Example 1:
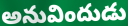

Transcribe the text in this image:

అనువిందుడు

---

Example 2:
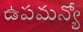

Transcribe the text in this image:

ఉపమన్యో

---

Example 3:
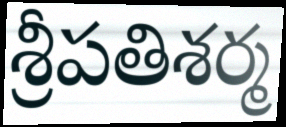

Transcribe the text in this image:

శ్రీపతిశర్మ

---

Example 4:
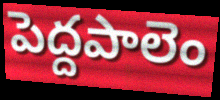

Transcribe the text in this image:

పెద్దపాలెం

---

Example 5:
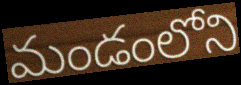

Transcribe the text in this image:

మండంలోని